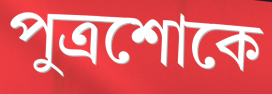
পুত্রশোকে